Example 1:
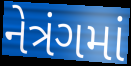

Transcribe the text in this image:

નેત્રંગમાં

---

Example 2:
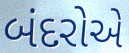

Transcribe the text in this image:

બંદરોએ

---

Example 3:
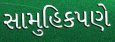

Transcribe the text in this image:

સામુહિકપણે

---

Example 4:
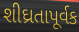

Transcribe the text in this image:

શીઘ્રતાપૂર્વક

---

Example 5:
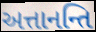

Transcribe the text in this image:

અત્તાનન્તિ